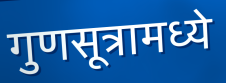
गुणसूत्रामध्ये